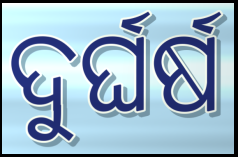
ଦୁର୍ଘର୍ଷ